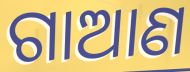
ଗାଆଣ